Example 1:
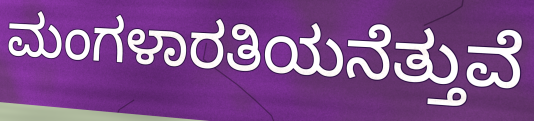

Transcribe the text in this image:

ಮಂಗಳಾರತಿಯನೆತ್ತುವೆ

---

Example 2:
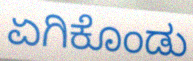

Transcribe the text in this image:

ಏಗಿಕೊಂಡು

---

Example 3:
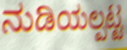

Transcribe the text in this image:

ನುಡಿಯಲ್ಪಟ್ಟ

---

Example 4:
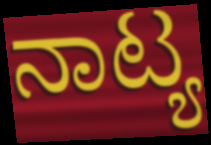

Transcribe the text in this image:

ನಾಟ್ಯ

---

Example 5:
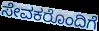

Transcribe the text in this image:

ಸೇವಕರೊಂದಿಗೆ